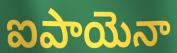
ఐపాయెనా